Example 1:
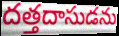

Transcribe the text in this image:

దత్తదాసుడను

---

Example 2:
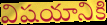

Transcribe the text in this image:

విషయానికి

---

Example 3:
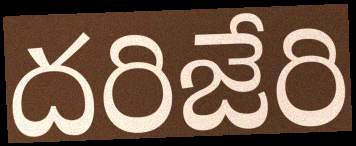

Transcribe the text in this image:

దరిజేరి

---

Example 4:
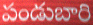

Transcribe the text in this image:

పండుబారి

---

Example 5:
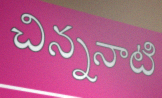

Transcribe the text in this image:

చిన్ననాటి